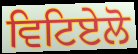
ਵਿਟਿਏਲੋ